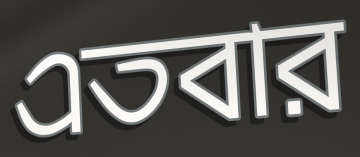
এতবার